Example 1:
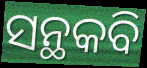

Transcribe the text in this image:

ସନ୍ଥକବି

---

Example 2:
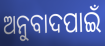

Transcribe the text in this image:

ଅନୁବାଦପାଇଁ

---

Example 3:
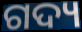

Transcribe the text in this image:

ଗଦ୍ୟ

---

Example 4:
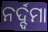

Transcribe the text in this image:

ନର୍ଦ୍ଦମା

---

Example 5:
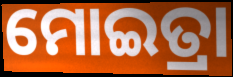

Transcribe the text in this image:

ମୋଇତ୍ରା